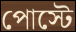
পোস্টে